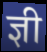
ज्ञी